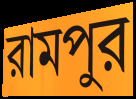
রামপুর